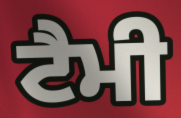
ਟੈਮੀ